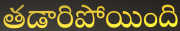
తడారిపోయింది